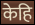
केहि